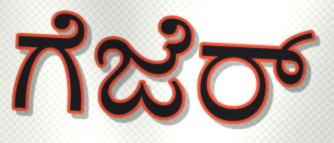
ಗೆಜೆರ್